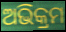
ଅଭିକ୍ରମ